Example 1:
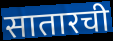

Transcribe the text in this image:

सातारची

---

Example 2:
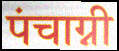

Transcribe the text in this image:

पंचाग्नी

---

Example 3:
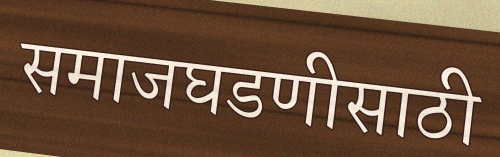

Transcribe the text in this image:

समाजघडणीसाठी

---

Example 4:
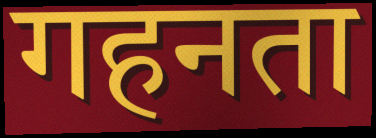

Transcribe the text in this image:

गहनता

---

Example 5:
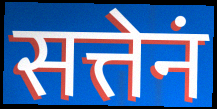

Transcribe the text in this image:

सत्तेनं